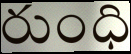
రుంధి